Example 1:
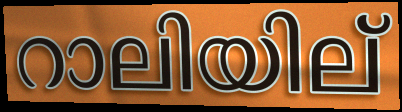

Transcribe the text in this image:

റാലിയില്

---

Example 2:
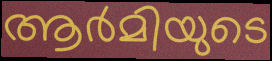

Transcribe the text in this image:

ആർമിയുടെ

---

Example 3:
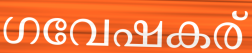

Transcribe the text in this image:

ഗവേഷകര്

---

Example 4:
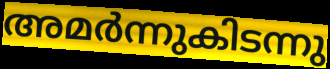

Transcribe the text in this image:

അമർന്നുകിടന്നു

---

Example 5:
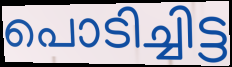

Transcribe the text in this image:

പൊടിച്ചിട്ട